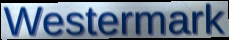
Westermark